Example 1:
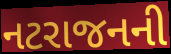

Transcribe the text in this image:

નટરાજનની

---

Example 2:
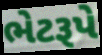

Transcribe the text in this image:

ભેટરૂપે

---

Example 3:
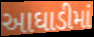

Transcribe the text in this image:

આઘાડીમાં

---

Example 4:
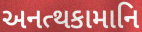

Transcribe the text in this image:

અનત્થકામાનિ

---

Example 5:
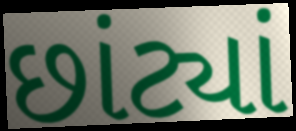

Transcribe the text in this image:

છાંટ્યાં